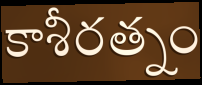
కాశీరత్నం